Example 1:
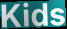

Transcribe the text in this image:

Kids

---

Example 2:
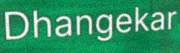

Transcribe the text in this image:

Dhangekar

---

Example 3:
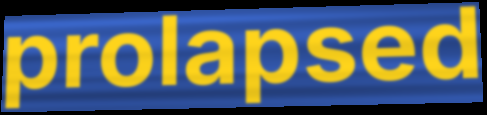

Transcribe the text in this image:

prolapsed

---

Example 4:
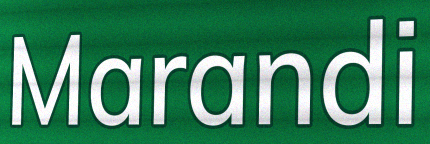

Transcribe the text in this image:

Marandi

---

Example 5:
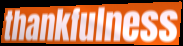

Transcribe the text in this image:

thankfulness